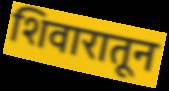
शिवारातून